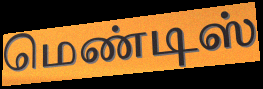
மெண்டிஸ்